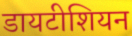
डायटीशियन